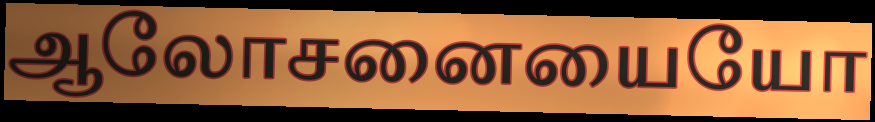
ஆலோசனையையோ